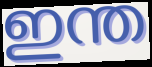
ഇന്ത